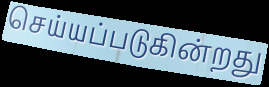
செய்யப்படுகின்றது